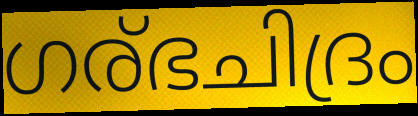
ഗര്ഭചിദ്രം